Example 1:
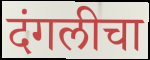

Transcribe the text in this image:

दंगलीचा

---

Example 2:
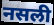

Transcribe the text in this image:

नसली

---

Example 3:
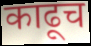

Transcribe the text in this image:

काढूच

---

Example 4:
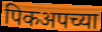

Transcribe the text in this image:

पिकअपच्या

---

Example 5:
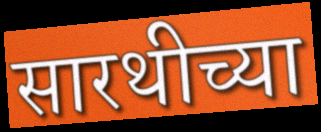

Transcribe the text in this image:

सारथीच्या